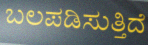
ಬಲಪಡಿಸುತ್ತಿದೆ